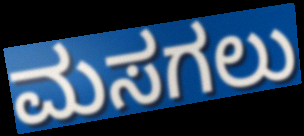
ಮಸಗಲು